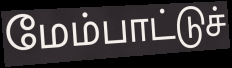
மேம்பாட்டுச்